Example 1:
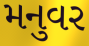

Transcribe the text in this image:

મનુવર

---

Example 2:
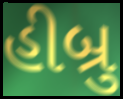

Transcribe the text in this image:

હીબ્રુ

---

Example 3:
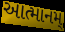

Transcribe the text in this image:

આત્માનમ્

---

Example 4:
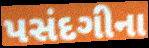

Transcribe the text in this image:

પસંદગીના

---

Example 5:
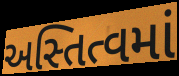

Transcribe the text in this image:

અસ્તિત્વમાં